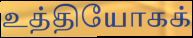
உத்தியோகக்